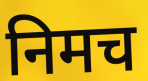
निमच